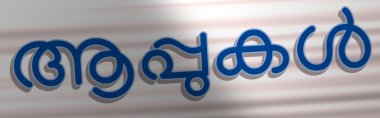
ആപ്പുകൾ